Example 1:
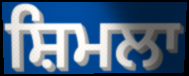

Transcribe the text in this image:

ਸ਼ਿਮਲਾ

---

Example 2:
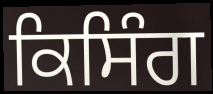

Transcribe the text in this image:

ਕਿਸਿੰਗ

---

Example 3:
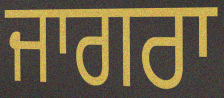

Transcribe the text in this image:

ਜਾਗਰਾ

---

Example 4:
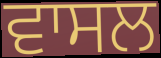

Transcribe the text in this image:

ਵਾਸਲ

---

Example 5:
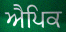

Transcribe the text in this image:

ਐਪਿਕ